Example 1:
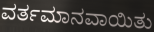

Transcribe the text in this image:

ವರ್ತಮಾನವಾಯಿತು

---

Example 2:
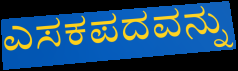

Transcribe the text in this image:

ಎಸಕಪದವನ್ನು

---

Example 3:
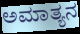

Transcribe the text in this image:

ಅಮಾತ್ಯನ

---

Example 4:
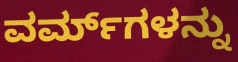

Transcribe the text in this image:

ವರ್ಮ್‌ಗಳನ್ನು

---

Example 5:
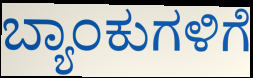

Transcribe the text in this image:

ಬ್ಯಾಂಕುಗಳಿಗೆ